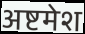
अष्टमेश